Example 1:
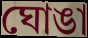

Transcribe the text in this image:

ঘোঙা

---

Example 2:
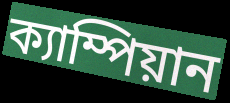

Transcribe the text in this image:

ক্যাম্পিয়ান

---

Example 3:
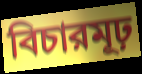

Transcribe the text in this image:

বিচারমূঢ়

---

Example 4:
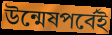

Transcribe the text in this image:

উন্মেষপর্বেই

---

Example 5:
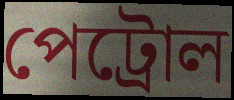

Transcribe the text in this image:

পেট্রোল